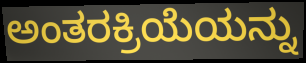
ಅಂತರಕ್ರಿಯೆಯನ್ನು